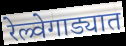
रेल्वेगाड्यात